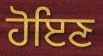
ਹੋਇਣ